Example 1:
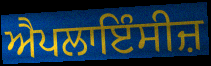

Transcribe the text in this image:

ਐਪਲਾਇੰਸੀਜ਼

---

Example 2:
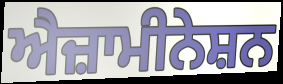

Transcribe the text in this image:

ਐਜ਼ਾਮੀਨੇਸ਼ਨ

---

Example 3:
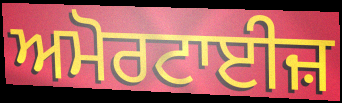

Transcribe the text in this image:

ਅਮੋਰਟਾਈਜ਼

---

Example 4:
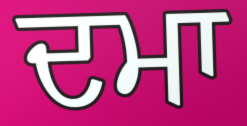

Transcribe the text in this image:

ਦਮਾ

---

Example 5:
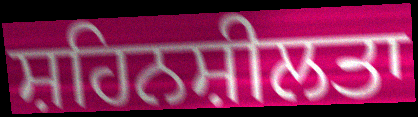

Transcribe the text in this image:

ਸ਼ਹਿਨਸ਼ੀਲਤਾ